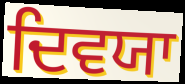
ਦਿਵਯਾ